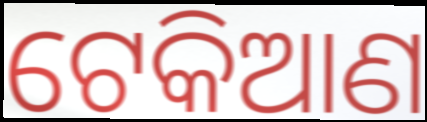
ଟେକିଆଣ